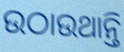
ଉଠାଉଥାନ୍ତି